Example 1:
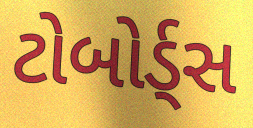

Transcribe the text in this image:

ટોબોર્ડ્સ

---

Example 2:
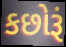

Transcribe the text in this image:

કછોરૂં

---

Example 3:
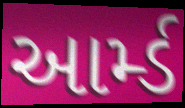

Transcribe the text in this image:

આર્મ્ડ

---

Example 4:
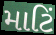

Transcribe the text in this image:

માટિં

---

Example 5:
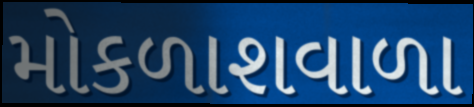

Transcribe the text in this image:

મોકળાશવાળા